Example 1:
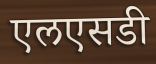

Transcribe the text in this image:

एलएसडी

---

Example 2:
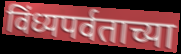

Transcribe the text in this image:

विंध्यपर्वताच्या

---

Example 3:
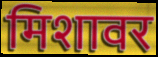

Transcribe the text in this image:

मिशावर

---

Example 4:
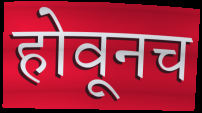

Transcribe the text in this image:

होवूनच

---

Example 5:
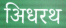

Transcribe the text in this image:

अिधरथ